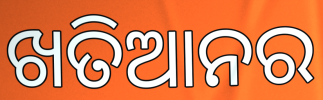
ଖତିଆନର